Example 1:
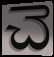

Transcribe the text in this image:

చె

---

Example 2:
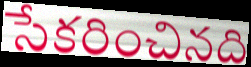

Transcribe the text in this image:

సేకరించినది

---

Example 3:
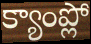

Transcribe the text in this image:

క్యాంప్లో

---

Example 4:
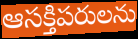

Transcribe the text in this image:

ఆసక్తిపరులను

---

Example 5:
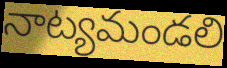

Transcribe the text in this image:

నాట్యమండలి